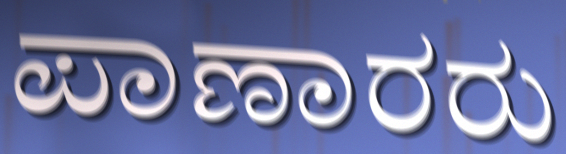
ಪಾಣಾರರು